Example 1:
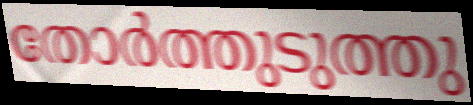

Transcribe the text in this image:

തോർത്തുടുത്തു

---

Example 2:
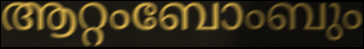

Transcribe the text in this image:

ആറ്റംബോംബും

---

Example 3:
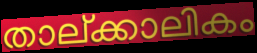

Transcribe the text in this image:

താല്ക്കാലികം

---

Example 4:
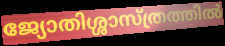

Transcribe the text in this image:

ജ്യോതിശ്ശാസ്ത്രത്തിൽ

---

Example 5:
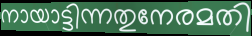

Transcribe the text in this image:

നായാട്ടിന്നതുനേരമതി